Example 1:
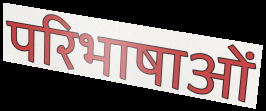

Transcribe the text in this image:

परिभाषाओं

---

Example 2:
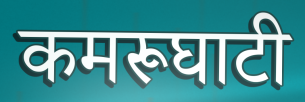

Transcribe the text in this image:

कमरूघाटी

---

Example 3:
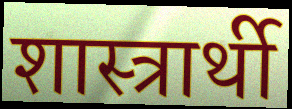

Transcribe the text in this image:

शास्त्रार्थी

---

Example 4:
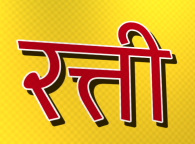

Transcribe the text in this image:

रत्ती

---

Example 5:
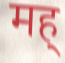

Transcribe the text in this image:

मह्